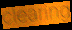
clearing